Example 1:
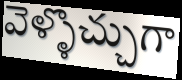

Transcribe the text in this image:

వెళ్ళొచ్చుగా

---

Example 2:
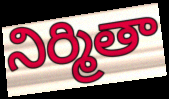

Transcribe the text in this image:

నిర్మితా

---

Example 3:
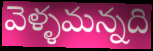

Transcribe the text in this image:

వెళ్ళమన్నది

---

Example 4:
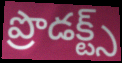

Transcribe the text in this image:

ప్రొడక్ట్స్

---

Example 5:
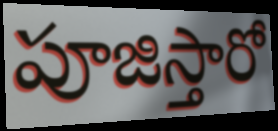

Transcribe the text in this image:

పూజిస్తారో